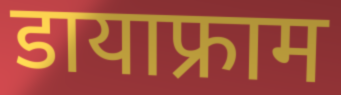
डायाफ्राम